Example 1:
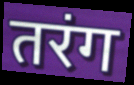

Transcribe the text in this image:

तरंग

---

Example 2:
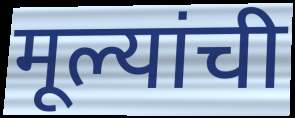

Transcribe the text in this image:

मूल्यांची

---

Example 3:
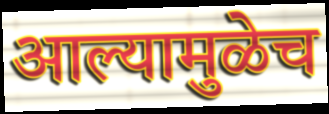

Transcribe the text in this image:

आल्यामुळेच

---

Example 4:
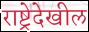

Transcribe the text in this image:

राष्ट्रेदेखील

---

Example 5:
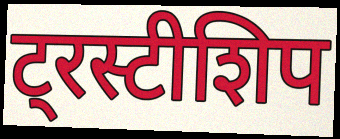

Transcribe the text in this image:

ट्रस्टीशिप